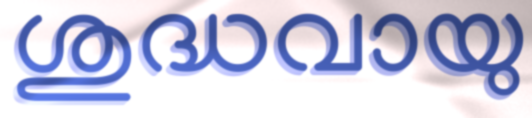
ശുദ്ധവായു